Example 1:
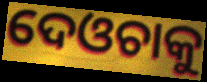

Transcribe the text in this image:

ଦେଓଚାକୁ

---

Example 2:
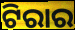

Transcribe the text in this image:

ଟିରାର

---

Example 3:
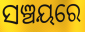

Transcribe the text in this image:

ସଞ୍ଚୟରେ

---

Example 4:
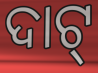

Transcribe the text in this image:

ଦାଟ୍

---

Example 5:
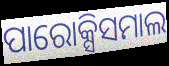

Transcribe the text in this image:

ପାରୋକ୍ସିସମାଲ